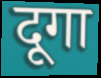
दूगा